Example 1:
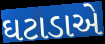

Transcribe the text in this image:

ઘટાડાએ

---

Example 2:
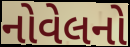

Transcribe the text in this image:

નોવેલનો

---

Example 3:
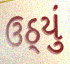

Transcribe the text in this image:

ઉઠ્યું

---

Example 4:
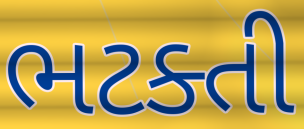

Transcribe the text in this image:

ભટક્તી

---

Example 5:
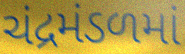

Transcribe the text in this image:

ચંદ્રમંડળમાં